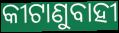
କୀଟାଣୁବାହୀ